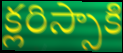
క్లరిస్సాకి